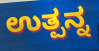
ಉತ್ಪನ್ನ